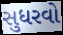
સુધરવો